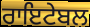
ਰਾਇਟੇਬਲ